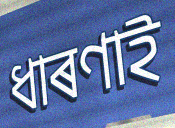
ধাৰণাই